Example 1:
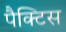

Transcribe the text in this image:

पैक्टिस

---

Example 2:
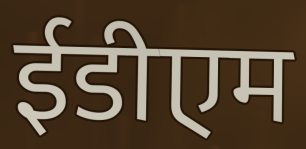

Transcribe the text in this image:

ईडीएम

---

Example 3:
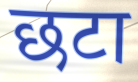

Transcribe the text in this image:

छटा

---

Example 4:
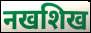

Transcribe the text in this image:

नखशिख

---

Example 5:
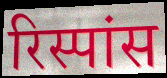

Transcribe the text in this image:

रिस्पांस